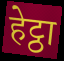
हेट्ठा